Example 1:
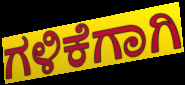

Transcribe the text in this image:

ಗಳಿಕೆಗಾಗಿ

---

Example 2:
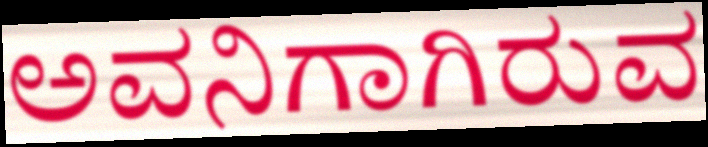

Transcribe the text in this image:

ಅವನಿಗಾಗಿರುವ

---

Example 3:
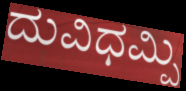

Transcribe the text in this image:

ದುವಿಧಮ್ಪಿ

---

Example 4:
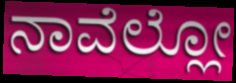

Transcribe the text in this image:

ನಾವೆಲ್ಲೋ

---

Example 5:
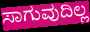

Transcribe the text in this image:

ಸಾಗುವುದಿಲ್ಲ